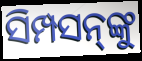
ସିମ୍ପସନ୍‍ଙ୍କୁ